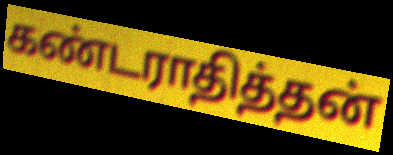
கண்டராதித்தன்